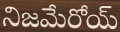
నిజమేరోయ్